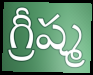
గ్రీష్మ